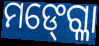
ମଙ୍ଗ୍ଳୋ